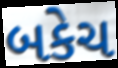
બકેચ